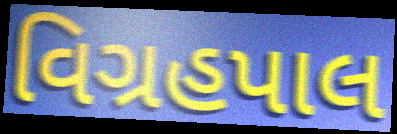
વિગ્રહપાલ